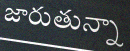
జారుతున్నా